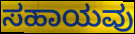
ಸಹಾಯವು